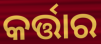
କର୍ତ୍ତାର